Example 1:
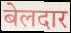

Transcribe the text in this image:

बेलदार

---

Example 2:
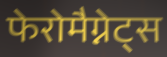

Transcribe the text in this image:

फेरोमैग्नेट्स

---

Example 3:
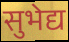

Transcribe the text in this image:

सुभेद्य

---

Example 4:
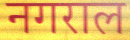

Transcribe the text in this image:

नगराल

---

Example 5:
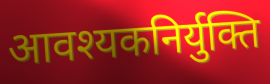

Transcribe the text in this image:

आवश्यकनिर्युक्ति